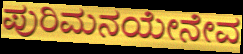
ಪುರಿಮನಯೇನೇವ